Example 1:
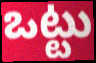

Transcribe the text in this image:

ఒట్టు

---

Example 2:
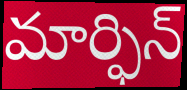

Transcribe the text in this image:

మార్ఫిన్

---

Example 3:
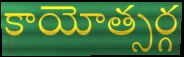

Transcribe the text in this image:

కాయోత్సర్గ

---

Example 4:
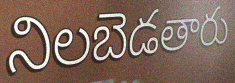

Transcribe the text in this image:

నిలబెడతారు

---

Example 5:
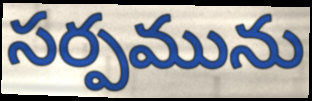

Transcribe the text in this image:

సర్పమును